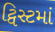
ટ્વિસ્ટમાં